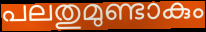
പലതുമുണ്ടാകും